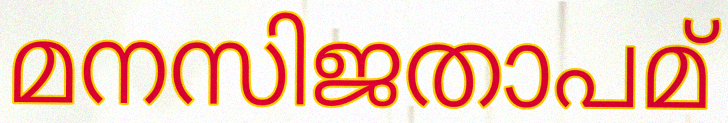
മനസിജതാപമ്